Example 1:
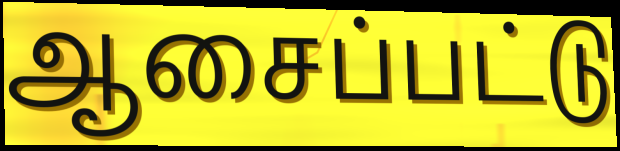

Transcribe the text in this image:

ஆசைப்பட்டு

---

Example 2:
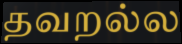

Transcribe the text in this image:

தவறல்ல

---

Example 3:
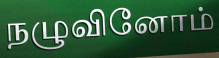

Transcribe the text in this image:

நழுவினோம்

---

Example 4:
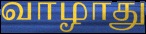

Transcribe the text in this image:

வாழாது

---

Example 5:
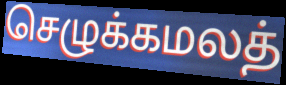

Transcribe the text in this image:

செழுக்கமலத்